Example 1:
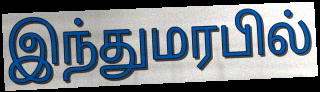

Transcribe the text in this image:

இந்துமரபில்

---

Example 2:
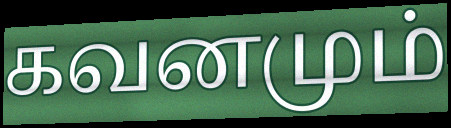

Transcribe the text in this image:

கவனமும்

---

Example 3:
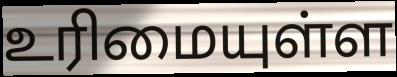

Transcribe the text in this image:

உரிமையுள்ள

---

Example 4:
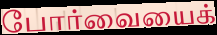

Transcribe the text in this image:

போர்வையைக்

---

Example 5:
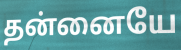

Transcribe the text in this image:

தன்னையே